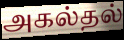
அகல்தல்